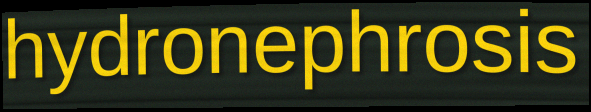
hydronephrosis